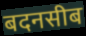
बदनसीब